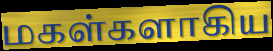
மகள்களாகிய